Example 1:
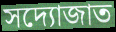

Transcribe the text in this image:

সদ্যোজাত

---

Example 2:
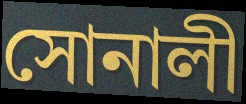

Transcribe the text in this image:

সোনালী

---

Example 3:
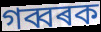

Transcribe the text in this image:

গব্বৰক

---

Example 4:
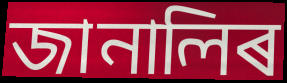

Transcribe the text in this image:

জানালিৰ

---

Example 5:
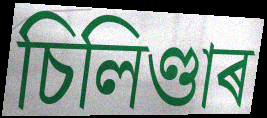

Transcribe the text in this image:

চিলিণ্ডাৰ